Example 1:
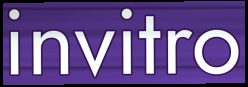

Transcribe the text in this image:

invitro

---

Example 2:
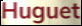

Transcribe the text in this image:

Huguet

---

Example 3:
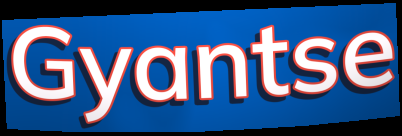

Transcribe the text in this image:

Gyantse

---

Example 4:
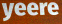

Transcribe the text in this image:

yeere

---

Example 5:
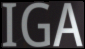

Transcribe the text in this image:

IGA